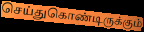
செய்துகொண்டிருக்கும்